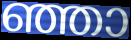
ഞ്ഞാ